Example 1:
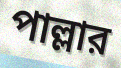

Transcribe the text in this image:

পাল্লার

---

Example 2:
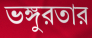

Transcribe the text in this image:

ভঙ্গুরতার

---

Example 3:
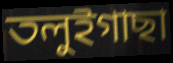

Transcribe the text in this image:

তলুইগাছা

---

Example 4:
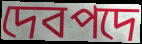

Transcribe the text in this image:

দেবপদে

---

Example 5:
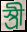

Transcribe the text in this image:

স্ত্রী